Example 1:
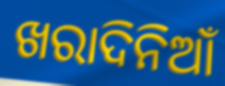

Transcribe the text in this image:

ଖରାଦିନିଆଁ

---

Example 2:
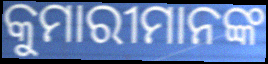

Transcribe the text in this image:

କୁମାରୀମାନଙ୍କ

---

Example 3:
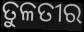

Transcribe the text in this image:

ତୁଳତୀର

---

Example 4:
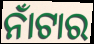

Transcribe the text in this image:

ନାଁଟାର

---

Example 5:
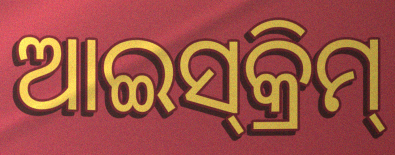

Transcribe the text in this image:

ଆଇସ୍‍କ୍ରିମ୍